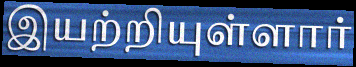
இயற்றியுள்ளார்